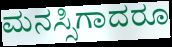
ಮನಸ್ಸಿಗಾದರೂ